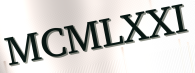
MCMLXXI